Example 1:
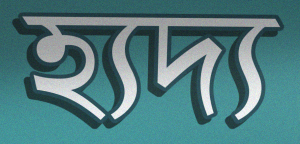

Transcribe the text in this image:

হ্যদ্য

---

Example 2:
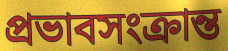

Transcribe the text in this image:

প্রভাবসংক্রান্ত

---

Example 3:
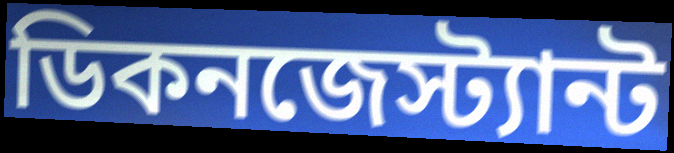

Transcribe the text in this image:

ডিকনজেস্ট্যান্ট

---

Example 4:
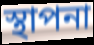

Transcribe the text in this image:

স্থাপনা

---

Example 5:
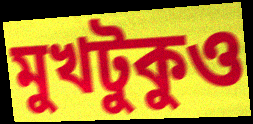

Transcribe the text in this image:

মুখটুকুও